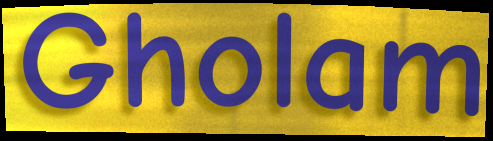
Gholam